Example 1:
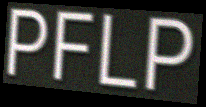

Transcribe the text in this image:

PFLP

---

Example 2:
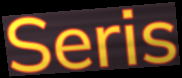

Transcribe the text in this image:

Seris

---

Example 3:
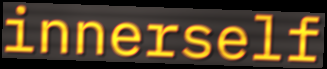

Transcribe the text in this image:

innerself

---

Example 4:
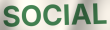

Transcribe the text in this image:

SOCIAL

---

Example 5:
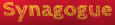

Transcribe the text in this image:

Synagogue